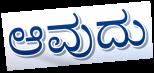
ಆವುದು